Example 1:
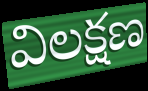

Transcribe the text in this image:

విలక్షణ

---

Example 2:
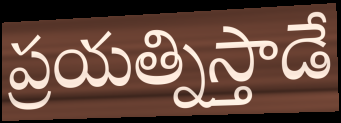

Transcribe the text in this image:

ప్రయత్నిస్తాడే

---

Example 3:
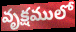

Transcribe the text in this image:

వృక్షములో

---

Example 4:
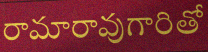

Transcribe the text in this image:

రామారావుగారితో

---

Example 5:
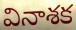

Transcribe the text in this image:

వినాశక